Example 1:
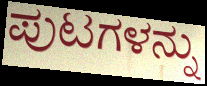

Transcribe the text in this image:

ಪುಟಗಳನ್ನು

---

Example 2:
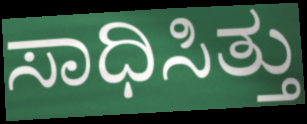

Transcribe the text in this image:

ಸಾಧಿಸಿತ್ತು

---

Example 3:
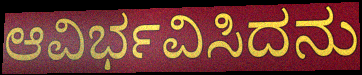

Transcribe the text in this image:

ಆವಿರ್ಭವಿಸಿದನು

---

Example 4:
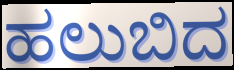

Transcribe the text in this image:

ಹಲುಬಿದ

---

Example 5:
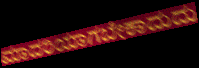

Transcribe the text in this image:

ಮಾದರಿಯಾಗಬೇಕಾದುದು